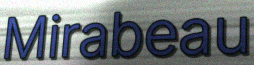
Mirabeau